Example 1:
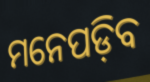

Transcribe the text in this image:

ମନେପଡ଼ିବ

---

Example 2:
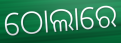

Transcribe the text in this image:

ଠୋଲାରେ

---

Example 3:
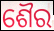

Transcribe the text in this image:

ଶୈର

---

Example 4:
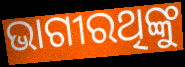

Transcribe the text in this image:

ଭାଗୀରଥିଙ୍କୁ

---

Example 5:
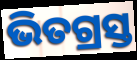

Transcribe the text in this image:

ଭିତଗ୍ରସ୍ତ